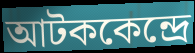
আটককেন্দ্রে